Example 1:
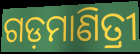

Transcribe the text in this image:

ଗଡ଼ମାଣିତ୍ରୀ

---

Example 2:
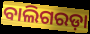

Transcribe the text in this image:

ବାଲିଗରଡ଼ା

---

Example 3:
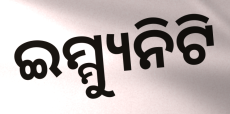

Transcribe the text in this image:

ଇମ୍ମ୍ୟୁନିଟି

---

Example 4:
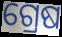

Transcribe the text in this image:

ଗ୍ରେଷ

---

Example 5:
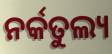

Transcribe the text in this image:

ନର୍କତୁଲ୍ୟ